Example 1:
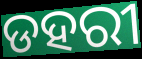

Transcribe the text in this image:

ଡହରୀ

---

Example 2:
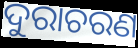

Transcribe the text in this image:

ଦୁରାଚରଣ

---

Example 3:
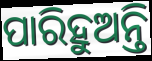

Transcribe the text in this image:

ପାରିହୁଅନ୍ତି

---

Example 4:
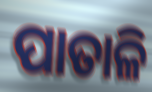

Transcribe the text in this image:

ପାତାଳି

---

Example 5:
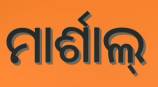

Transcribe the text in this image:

ମାର୍ଶାଲ୍